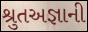
શ્રુતઅજ્ઞાની